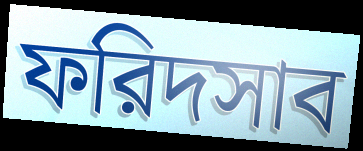
ফরিদসাব